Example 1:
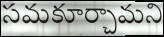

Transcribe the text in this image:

సమకూర్చామని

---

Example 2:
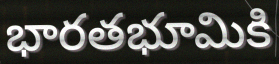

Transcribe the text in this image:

భారతభూమికి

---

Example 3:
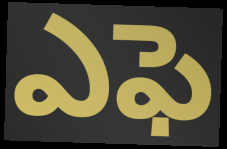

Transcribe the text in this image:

ఎఫె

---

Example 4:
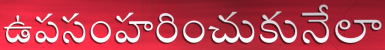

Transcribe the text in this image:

ఉపసంహరించుకునేలా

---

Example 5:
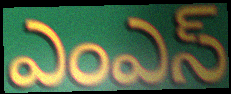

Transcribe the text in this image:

ఎంఎస్